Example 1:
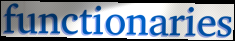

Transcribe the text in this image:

functionaries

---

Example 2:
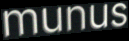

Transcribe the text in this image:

munus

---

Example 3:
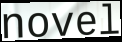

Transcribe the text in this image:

novel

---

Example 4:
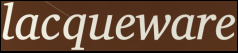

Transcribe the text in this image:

lacqueware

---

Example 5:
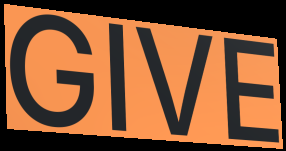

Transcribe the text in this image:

GIVE